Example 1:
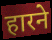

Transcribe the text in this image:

हारने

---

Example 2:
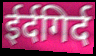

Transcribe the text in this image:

ईर्दगिर्द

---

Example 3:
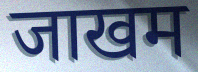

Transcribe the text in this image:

जाखम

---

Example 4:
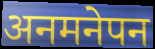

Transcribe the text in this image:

अनमनेपन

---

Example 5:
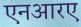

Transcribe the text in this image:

एनआरए